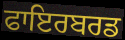
ਫਾਇਰਬਰਡ